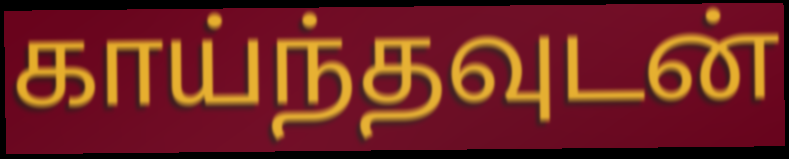
காய்ந்தவுடன்